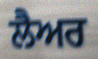
ਲੈਅਰ